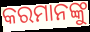
କରମାନଙ୍କୁ